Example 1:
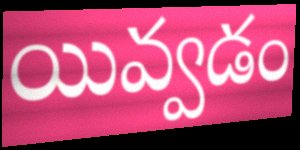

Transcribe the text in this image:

యివ్వడం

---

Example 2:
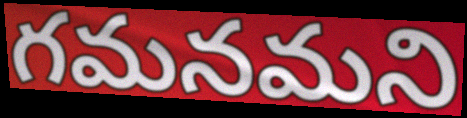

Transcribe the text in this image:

గమనమని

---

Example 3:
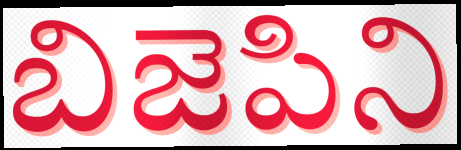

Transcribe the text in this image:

బిజెపిని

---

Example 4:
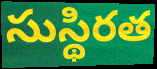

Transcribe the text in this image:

సుస్థిరత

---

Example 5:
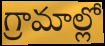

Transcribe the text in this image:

గ్రామాల్లో